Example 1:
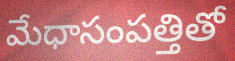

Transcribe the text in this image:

మేధాసంపత్తితో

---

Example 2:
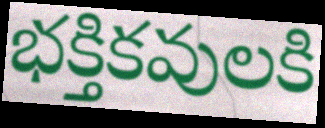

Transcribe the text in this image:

భక్తికవులకి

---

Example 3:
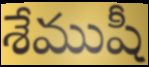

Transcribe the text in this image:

శేముషీ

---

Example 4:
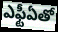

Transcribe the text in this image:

ఎఫ్టీఏతో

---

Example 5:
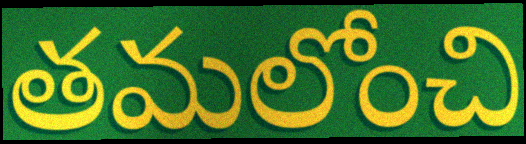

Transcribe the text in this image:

తమలోంచి